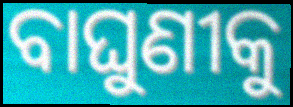
ବାଘୁଣୀକୁ